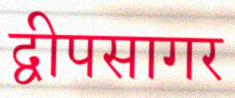
द्वीपसागर